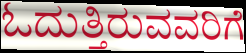
ಓದುತ್ತಿರುವವರಿಗೆ